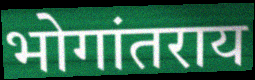
भोगांतराय